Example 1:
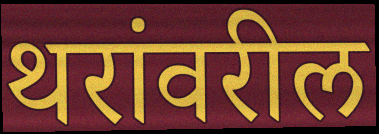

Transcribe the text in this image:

थरांवरील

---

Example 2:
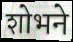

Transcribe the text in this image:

शोभने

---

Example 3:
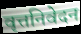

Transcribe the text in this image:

वृत्तनिवेदन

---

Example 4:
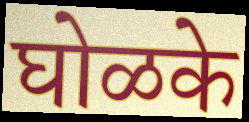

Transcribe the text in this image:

घोळके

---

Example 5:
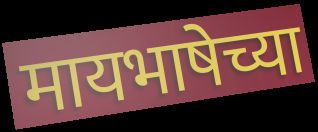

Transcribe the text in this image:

मायभाषेच्या